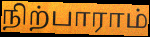
நிற்பாராம்